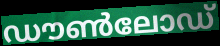
ഡൗൺലോഡ്